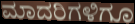
ಮಾದರಿಗಳಿಗೂ